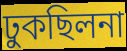
ঢুকছিলনা